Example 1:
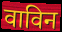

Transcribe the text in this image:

वाविन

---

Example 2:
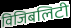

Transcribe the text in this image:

विजिबलिटी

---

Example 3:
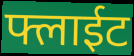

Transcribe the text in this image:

फ्लाईट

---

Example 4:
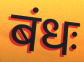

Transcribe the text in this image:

बंधः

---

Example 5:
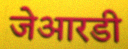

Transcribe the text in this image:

जेआरडी